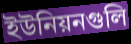
ইউনিয়নগুলি